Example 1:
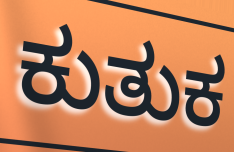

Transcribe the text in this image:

ಕುತುಕ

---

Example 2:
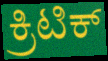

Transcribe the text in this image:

ಕ್ರಿಟಿಕ್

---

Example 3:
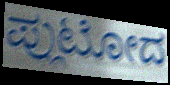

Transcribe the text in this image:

ಪ್ಲುಟೋದ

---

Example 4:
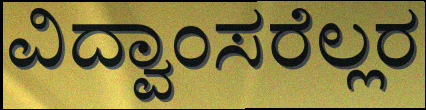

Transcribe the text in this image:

ವಿದ್ವಾಂಸರೆಲ್ಲರ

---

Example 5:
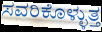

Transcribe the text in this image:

ಸವರಿಕೊಳ್ಳುತ್ತ